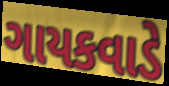
ગાયકવાડે